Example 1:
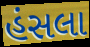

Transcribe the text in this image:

હંસલા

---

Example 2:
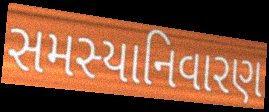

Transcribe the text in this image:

સમસ્યાનિવારણ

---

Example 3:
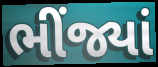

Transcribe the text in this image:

ભીંજ્યાં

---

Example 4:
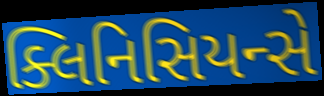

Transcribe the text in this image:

ક્લિનિસિયન્સે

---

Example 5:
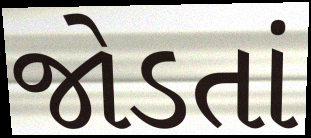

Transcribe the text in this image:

જોડતાં